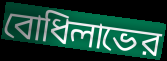
বোধিলাভের